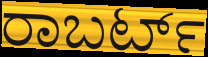
ರಾಬರ್ಟ್